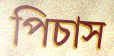
পিচাস